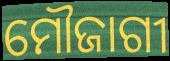
ମୌଜାଗୀ